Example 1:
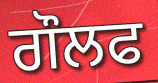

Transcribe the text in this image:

ਗੌਲਫ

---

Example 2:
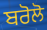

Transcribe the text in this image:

ਬਰੋਲੋ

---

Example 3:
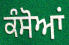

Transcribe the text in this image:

ਕੰਸੋਆਂ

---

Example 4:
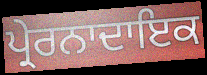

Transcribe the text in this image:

ਪ੍ਰੇਰਨਾਦਾਇਕ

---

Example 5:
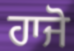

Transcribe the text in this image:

ਹਾਜੋ